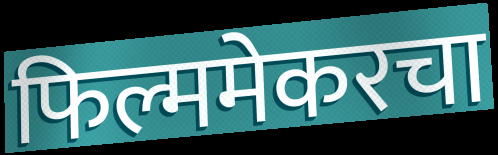
फिल्ममेकरचा